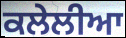
ਕਲੇਲੀਆ